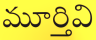
మూర్తివి